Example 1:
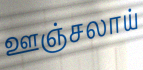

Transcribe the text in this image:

ஊஞ்சலாய்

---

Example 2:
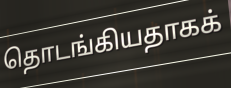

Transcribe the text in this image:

தொடங்கியதாகக்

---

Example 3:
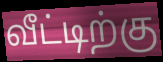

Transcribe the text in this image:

வீட்டிற்கு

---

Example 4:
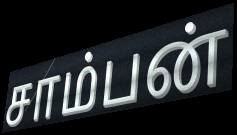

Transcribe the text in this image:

சாம்பன்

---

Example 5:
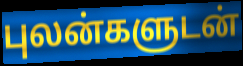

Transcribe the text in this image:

புலன்களுடன்